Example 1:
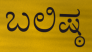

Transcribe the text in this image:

ಬಲಿಷ್ಠ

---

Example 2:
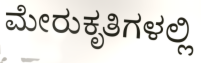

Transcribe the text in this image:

ಮೇರುಕೃತಿಗಳಲ್ಲಿ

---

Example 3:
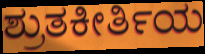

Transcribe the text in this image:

ಶ್ರುತಕೀರ್ತಿಯ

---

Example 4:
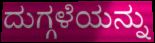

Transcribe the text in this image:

ದುಗ್ಗಳೆಯನ್ನು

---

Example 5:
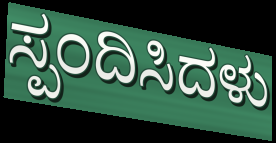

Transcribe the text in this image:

ಸ್ಪಂದಿಸಿದಳು